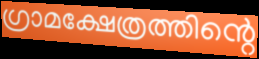
ഗ്രാമക്ഷേത്രത്തിന്റെ